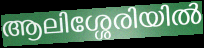
ആലിശ്ശേരിയിൽ